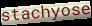
stachyose